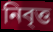
নিবৃত্ত